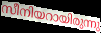
സീനിയറായിരുന്നു